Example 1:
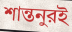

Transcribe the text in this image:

শান্তনুরই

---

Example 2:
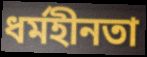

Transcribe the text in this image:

ধর্মহীনতা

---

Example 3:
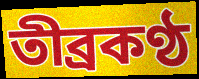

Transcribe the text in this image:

তীব্রকণ্ঠ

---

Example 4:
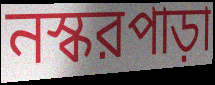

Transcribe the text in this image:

নস্করপাড়া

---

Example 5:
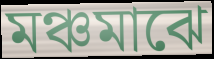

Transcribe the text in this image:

মঞ্চমাঝে